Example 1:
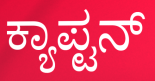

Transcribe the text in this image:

ಕ್ಯಾಪ್ಟನ್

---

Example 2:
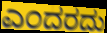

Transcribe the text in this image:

ಎಂದರದು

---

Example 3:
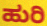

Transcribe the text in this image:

ಹುರಿ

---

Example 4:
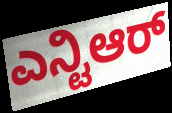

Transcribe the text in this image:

ಎನ್ಟಿಆರ್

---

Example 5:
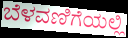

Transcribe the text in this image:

ಬೆಳವಣಿಗೆಯಲ್ಲಿ